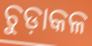
ଚୁଡ଼ାକଳ